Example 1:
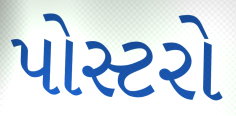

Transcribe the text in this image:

પોસ્ટરો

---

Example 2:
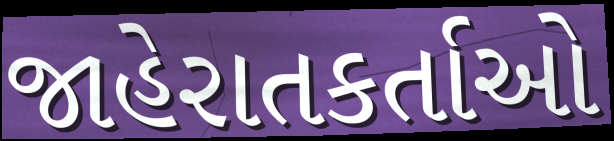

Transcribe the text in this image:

જાહેરાતકર્તાઓ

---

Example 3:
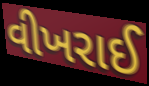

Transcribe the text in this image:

વીખરાઈ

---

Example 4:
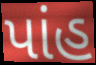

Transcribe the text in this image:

પાંહ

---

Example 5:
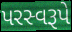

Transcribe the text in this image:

પરસ્વરૂપે